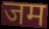
जम